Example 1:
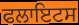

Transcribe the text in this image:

ਫਲਾਇਟਸ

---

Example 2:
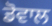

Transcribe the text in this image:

ਡੋਵਾਲ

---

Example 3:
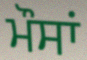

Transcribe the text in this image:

ਮੌਸਾਂ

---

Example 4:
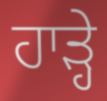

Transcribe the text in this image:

ਹਾੜ੍ਹੇ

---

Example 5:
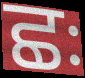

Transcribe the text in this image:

ਛਃ